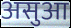
असुआ